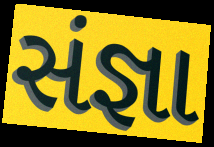
સંજ્ઞા